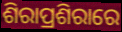
ଶିରାପ୍ରଶିରାରେ